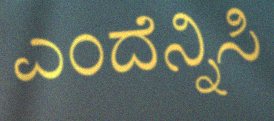
ಎಂದೆನ್ನಿಸಿ